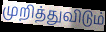
முறித்துவிடும்